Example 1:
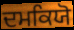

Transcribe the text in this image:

ਦਮਕਿਯੋ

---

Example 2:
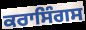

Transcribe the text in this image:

ਕਰਾਸਿੰਗਸ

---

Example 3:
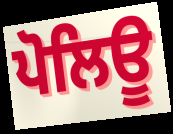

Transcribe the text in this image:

ਪੋਲਿਊ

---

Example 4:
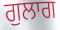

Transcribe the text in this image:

ਗੁਲਾਗ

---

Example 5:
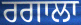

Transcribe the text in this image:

ਰਗਾਲਾ